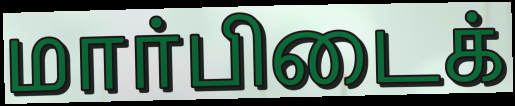
மார்பிடைக்